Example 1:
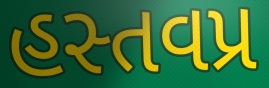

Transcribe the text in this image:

હસ્તવપ્ર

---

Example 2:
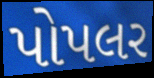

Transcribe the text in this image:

પોપલર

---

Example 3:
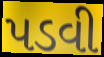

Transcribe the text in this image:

પડવી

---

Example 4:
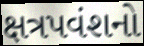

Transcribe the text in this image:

ક્ષત્રપવંશનો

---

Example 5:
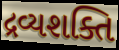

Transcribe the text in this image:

દ્રવ્યશક્તિ